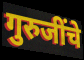
गुरुजींचे